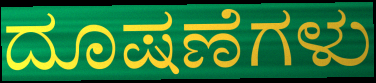
ದೂಷಣೆಗಳು